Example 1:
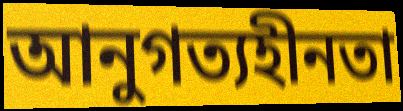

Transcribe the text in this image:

আনুগত্যহীনতা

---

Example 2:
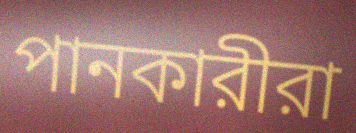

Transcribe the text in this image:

পানকারীরা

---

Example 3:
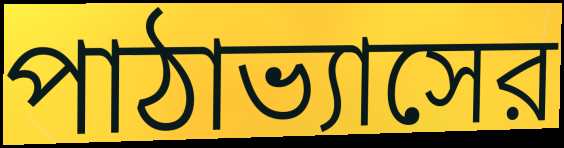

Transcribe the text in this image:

পাঠাভ্যাসের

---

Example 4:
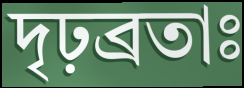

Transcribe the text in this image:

দৃঢ়ব্রতাঃ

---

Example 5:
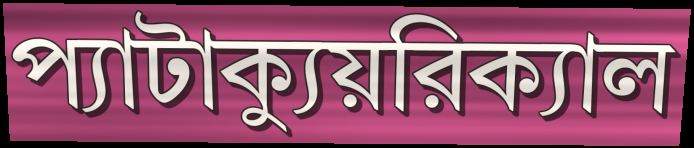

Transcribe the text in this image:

প্যাটাক্যুয়রিক্যাল